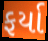
ફર્યા